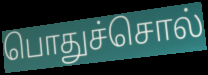
பொதுச்சொல்